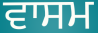
ਵਾਸਮ